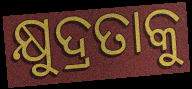
କ୍ଷୁଦ୍ରତାକୁ